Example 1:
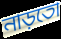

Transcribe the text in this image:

নাড়তো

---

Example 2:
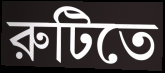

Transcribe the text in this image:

রুটিতে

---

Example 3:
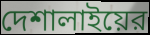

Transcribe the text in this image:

দেশালাইয়ের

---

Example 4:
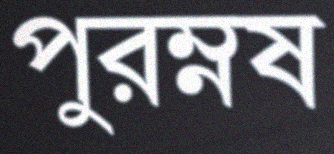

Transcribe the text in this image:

পুরম্নষ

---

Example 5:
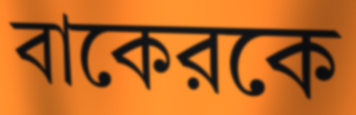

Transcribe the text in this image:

বাকেরকে